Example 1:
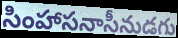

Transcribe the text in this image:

సింహాసనాసీనుడగు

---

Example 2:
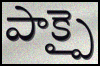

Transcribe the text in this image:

పాక్పై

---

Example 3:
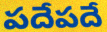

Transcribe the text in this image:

పదేపదే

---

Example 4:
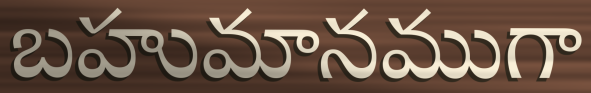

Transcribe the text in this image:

బహుమానముగా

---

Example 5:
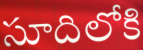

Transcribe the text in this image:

సూదిలోకి